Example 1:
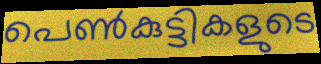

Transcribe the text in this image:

പെൺകുട്ടികളുടെ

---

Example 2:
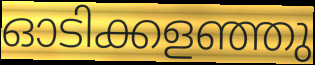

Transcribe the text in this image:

ഓടിക്കളഞ്ഞു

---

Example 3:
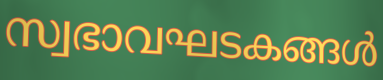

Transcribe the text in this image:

സ്വഭാവഘടകങ്ങൾ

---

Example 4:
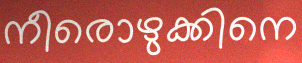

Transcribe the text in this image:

നീരൊഴുക്കിനെ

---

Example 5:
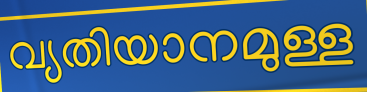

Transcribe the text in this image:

വ്യതിയാനമുള്ള